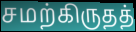
சமற்கிருதத்